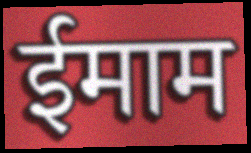
ईमाम